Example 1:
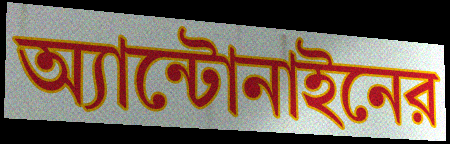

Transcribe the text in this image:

অ্যান্টোনাইনের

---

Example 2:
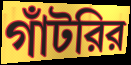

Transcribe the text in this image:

গাঁটরির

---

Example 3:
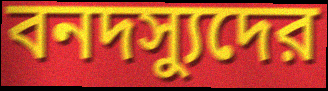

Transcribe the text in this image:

বনদস্যুদের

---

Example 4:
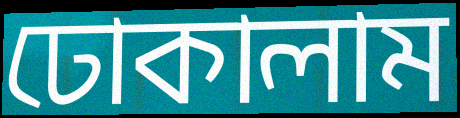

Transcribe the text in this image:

ঢোকালাম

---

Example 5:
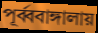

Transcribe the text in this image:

পূর্ব্ববাঙ্গালায়